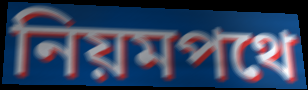
নিয়মপথে